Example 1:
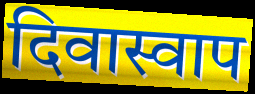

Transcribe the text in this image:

दिवास्वाप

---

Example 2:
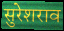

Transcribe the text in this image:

सुरेशराव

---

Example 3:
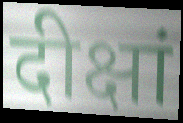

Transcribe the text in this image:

दीक्षां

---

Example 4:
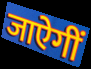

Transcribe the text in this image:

जाऐगीं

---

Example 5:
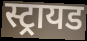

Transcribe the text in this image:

स्ट्रायड